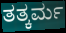
ತತ್ಕರ್ಮ